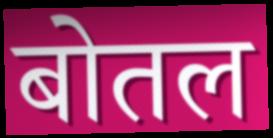
बोतल